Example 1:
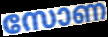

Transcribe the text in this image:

സോണ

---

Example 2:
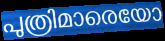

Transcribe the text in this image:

പുത്രിമാരെയോ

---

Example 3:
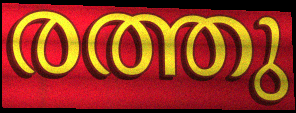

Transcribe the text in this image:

രത്തു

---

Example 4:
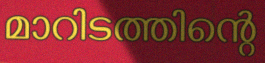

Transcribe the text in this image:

മാറിടത്തിന്റെ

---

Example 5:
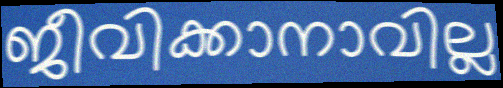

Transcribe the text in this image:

ജീവിക്കാനാവില്ല